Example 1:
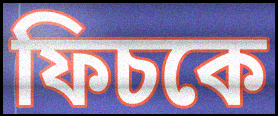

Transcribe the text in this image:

ফিচকে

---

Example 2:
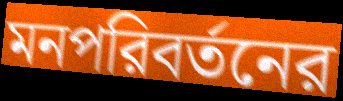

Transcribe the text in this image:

মনপরিবর্তনের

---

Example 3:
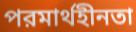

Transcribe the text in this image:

পরমার্থহীনতা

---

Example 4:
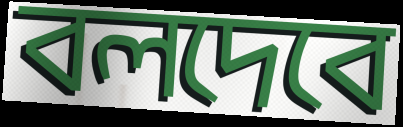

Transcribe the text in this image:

বলদেবে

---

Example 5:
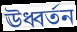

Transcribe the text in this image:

ঊধ্বর্তন